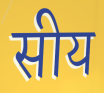
सीय